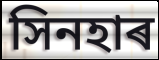
সিনহাৰ